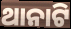
ଥାନାଟି